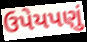
ઉપેયપણું